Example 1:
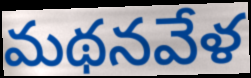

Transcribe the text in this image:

మథనవేళ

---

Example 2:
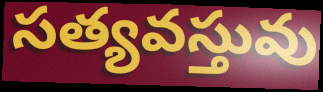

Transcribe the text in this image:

సత్యవస్తువు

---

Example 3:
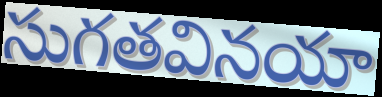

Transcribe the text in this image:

సుగతవినయా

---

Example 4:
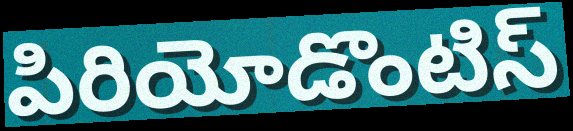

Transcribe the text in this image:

పిరియోడొంటిస్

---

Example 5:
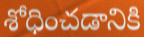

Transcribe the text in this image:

శోధించడానికి